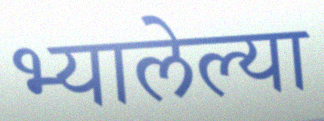
भ्यालेल्या